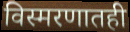
विस्मरणातही